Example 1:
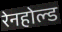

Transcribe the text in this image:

रेनहोल्ड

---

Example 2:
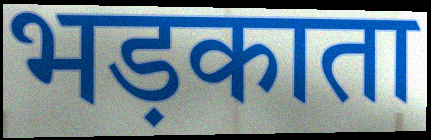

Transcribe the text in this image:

भड़काता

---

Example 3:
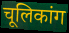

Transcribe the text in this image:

चूलिकांग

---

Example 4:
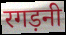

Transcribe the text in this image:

रगड़नी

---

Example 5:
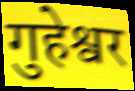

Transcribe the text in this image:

गुहेश्वर